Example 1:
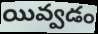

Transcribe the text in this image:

యివ్వడం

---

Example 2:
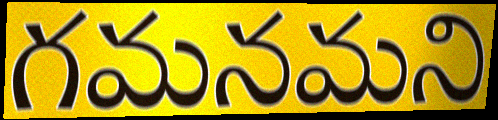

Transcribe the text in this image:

గమనమని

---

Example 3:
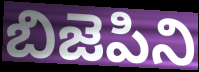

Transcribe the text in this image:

బిజెపిని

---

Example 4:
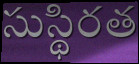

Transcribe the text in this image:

సుస్థిరత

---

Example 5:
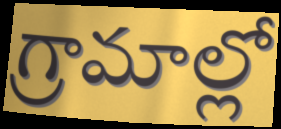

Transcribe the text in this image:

గ్రామాల్లో